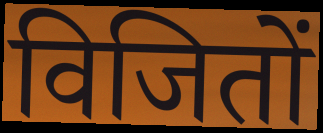
विजितों